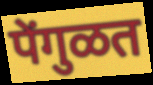
पेंगुळत